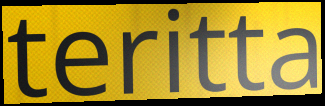
teritta